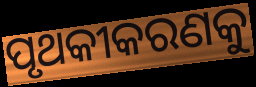
ପୃଥକୀକରଣକୁ